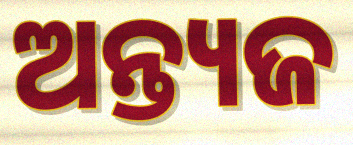
ଅନ୍ତ୍ୟଜ